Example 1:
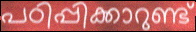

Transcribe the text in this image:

പഠിപ്പിക്കാറുണ്ട്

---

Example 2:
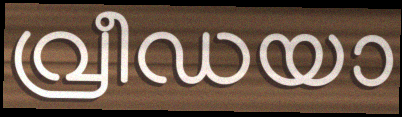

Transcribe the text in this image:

വ്രീഡയാ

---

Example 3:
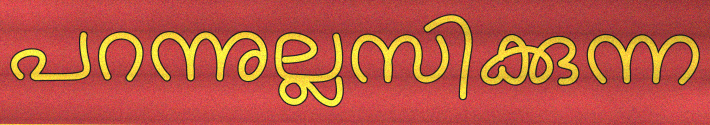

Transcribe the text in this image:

പറന്നുല്ലസിക്കുന്ന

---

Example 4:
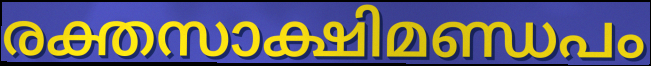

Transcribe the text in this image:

രക്തസാക്ഷിമണ്ഡപം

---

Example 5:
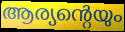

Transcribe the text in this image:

ആര്യന്റെയും